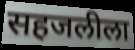
सहजलीला